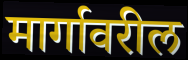
मार्गावरील